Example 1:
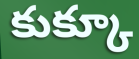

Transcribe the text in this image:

కుక్కూ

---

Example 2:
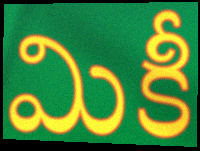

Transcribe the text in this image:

మికీ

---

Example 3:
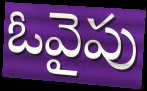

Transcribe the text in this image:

ఓవైపు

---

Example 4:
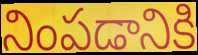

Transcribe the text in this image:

నింపడానికి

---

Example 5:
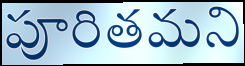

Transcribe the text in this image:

పూరితమని